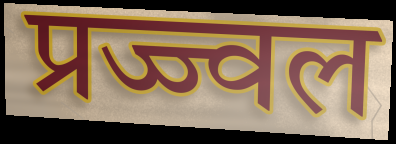
प्रज्ज्वल